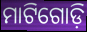
ମାଟିଗୋଡ଼ି